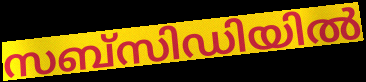
സബ്സിഡിയിൽ